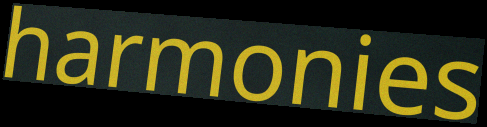
harmonies